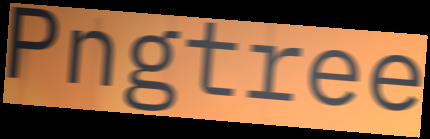
Pngtree